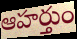
ఆహర్తుం